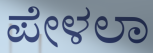
ಪೇಳಲಾ